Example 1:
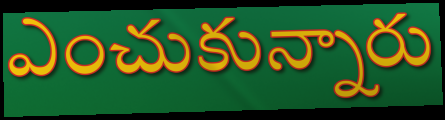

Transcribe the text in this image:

ఎంచుకున్నారు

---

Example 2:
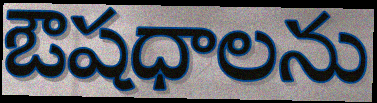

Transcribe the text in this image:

ఔషధాలను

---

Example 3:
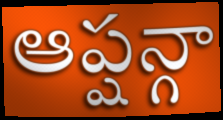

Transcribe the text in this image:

ఆప్షన్గా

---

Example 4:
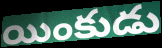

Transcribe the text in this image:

యింకుడు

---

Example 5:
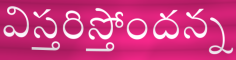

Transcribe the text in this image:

విస్తరిస్తోందన్న